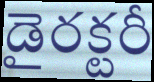
డైరక్టరీ